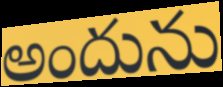
అందును